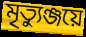
মৃত্যুঞ্জয়ে